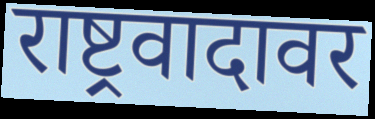
राष्ट्रवादावर